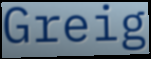
Greig